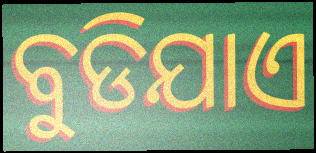
ବୁଡିଯାଏ